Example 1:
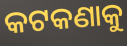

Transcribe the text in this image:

କଟକଣାକୁ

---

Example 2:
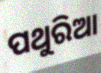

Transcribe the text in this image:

ପଥୁରିଆ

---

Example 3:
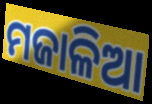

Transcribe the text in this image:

ମଜାଳିଆ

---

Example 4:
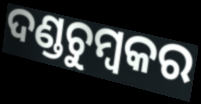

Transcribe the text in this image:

ଦଣ୍ଡଚୁମ୍ବକର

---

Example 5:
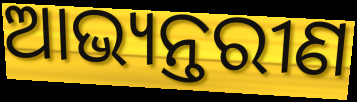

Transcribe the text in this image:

ଆଭ୍ୟନ୍ତରୀଣ